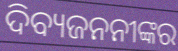
ଦିବ୍ୟଜନନୀଙ୍କର